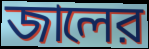
জালের